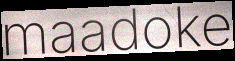
maadoke